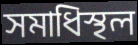
সমাধিস্থল